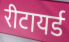
रीटायर्ड